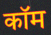
कॉम